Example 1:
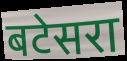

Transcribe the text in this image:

बटेसरा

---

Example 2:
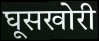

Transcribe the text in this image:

घूसखोरी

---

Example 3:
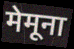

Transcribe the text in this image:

मेमूना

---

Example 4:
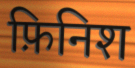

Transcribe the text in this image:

फ़िनिश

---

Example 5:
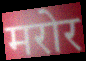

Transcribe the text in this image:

मरोर